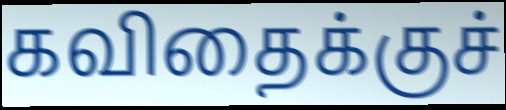
கவிதைக்குச்